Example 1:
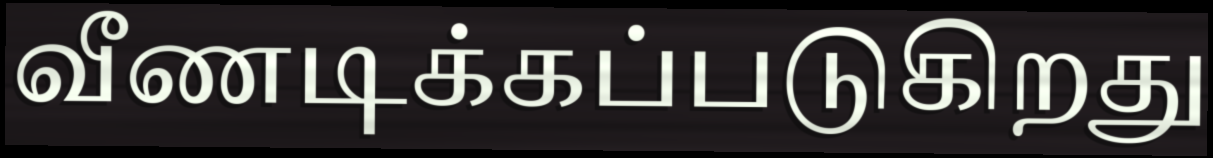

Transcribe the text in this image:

வீணடிக்கப்படுகிறது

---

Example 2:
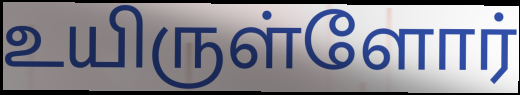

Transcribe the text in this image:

உயிருள்ளோர்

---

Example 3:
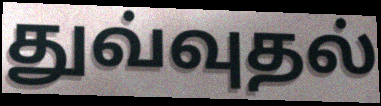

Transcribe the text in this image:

துவ்வுதல்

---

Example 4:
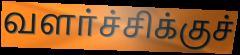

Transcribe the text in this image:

வளர்ச்சிக்குச்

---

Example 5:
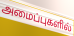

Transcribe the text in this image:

அமைப்புகளில்